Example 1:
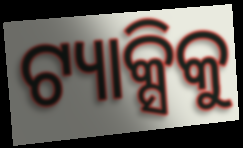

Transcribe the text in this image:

ଟ୍ୟାକ୍ସିକୁ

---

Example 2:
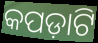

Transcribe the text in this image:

କପଡ଼ାଟି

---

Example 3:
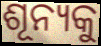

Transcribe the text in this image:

ଶୂନ୍ୟକୁ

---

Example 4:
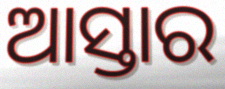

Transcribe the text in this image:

ଆସ୍ତାର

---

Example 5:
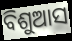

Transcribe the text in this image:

ବିଶୁଆସ